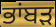
ਭਾਂਬੜ